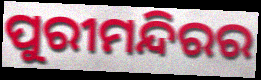
ପୁରୀମନ୍ଦିରର